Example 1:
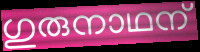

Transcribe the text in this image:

ഗുരുനാഥന്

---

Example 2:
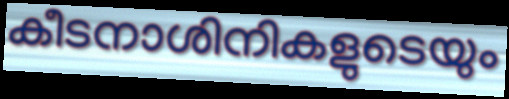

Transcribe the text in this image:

കീടനാശിനികളുടെയും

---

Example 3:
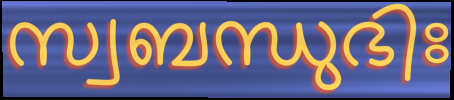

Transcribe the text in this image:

സ്വബന്ധുഭിഃ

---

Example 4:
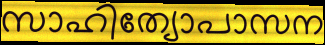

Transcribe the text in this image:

സാഹിത്യോപാസന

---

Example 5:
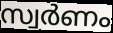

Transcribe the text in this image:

സ്വർണം